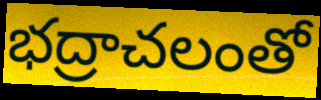
భద్రాచలంతో